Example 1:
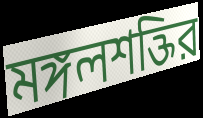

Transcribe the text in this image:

মঙ্গলশক্তির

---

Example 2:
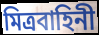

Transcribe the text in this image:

মিত্রবাহিনী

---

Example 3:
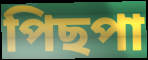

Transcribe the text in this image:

পিছপা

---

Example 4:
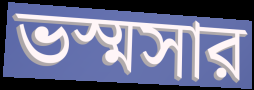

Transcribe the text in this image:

ভস্মসার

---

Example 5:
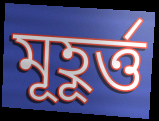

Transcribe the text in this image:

মূহূর্ত্ত